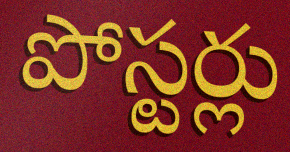
పోస్టర్లు